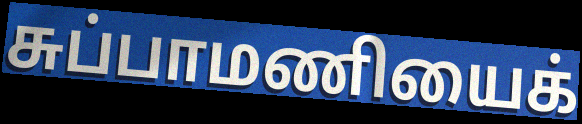
சுப்பாமணியைக்